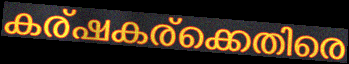
കര്ഷകര്ക്കെതിരെ